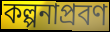
কল্পনাপ্রবণ